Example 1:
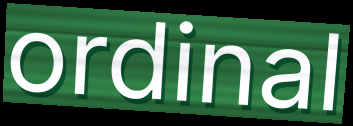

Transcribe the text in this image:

ordinal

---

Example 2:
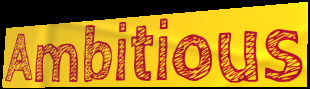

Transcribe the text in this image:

Ambitious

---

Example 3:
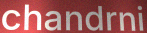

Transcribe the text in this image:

chandrni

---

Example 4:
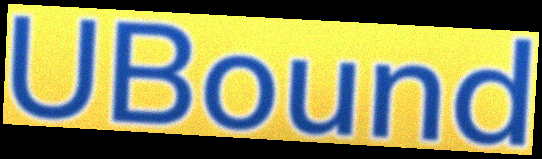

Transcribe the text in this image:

UBound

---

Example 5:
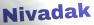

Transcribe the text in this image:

Nivadak